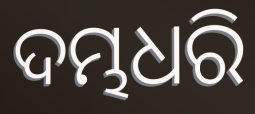
ଦମ୍ଭଧରି